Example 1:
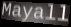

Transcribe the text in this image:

Mayall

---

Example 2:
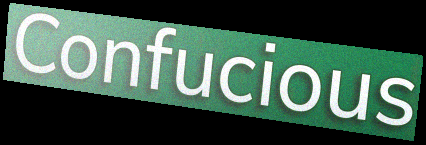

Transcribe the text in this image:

Confucious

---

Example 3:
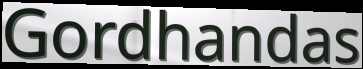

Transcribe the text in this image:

Gordhandas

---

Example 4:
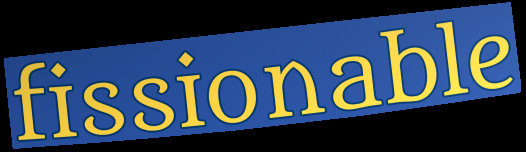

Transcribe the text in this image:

fissionable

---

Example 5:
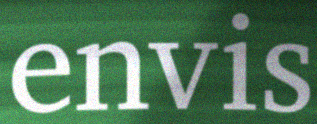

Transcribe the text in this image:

envis